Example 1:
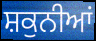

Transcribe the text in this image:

ਸ਼ਕੁਨੀਆਂ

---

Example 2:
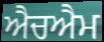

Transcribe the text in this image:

ਐਚਐਮ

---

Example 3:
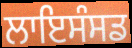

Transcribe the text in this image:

ਲਾਇਸੰਸਡ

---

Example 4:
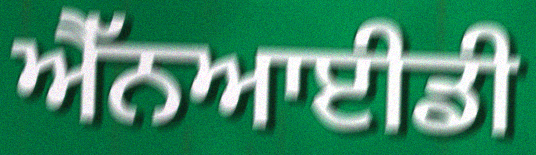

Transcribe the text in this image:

ਐੱਨਆਈਡੀ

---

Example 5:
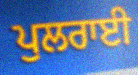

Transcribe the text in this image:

ਪੁਲਰਾਈ